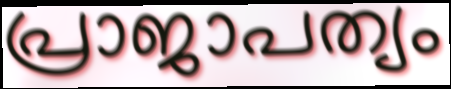
പ്രാജാപത്യം